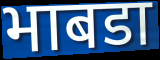
भाबडा